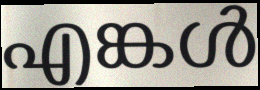
എങ്കൾ